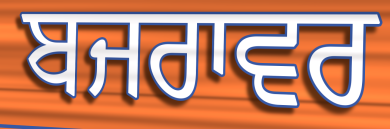
ਬਜਰਾਵਰ